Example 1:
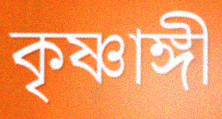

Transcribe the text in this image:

কৃষ্ণাঙ্গী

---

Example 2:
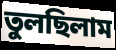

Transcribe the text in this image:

তুলছিলাম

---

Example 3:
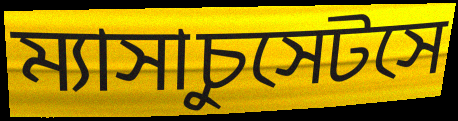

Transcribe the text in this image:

ম্যাসাচুসেটসে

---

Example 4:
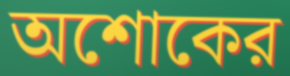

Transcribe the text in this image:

অশোকের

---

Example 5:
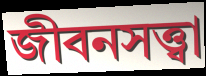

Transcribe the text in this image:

জীবনসত্ত্বা